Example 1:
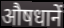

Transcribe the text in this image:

औषधानें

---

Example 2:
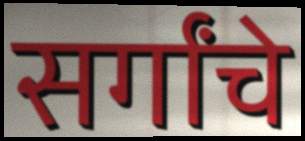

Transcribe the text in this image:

सर्गांचे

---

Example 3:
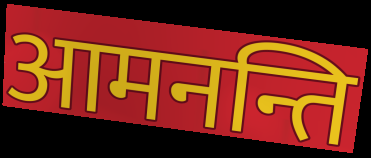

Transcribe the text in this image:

आमनन्ति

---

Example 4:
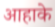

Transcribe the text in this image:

आहाके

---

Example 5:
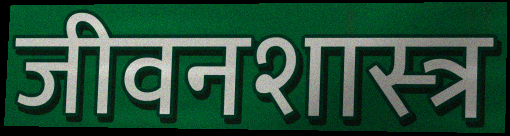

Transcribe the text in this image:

जीवनशास्त्र